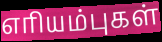
எரியம்புகள்